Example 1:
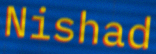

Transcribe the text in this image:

Nishad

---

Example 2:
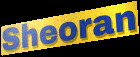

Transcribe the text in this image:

Sheoran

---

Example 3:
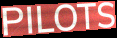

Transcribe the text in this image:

PILOTS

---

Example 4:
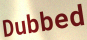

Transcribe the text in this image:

Dubbed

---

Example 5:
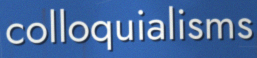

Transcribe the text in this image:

colloquialisms